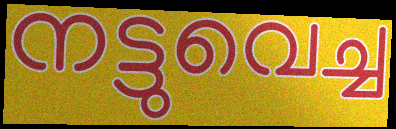
നട്ടുവെച്ച